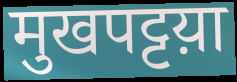
मुखपट्टय़ा